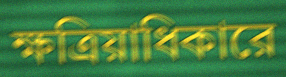
ক্ষত্রিয়াধিকারে